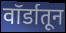
वॉर्डातून